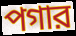
পগার